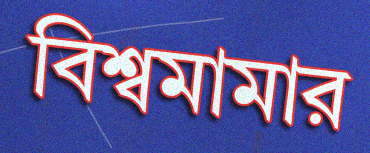
বিশ্বমামার